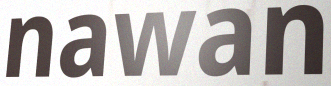
nawan